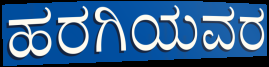
ಹರಗಿಯವರ